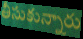
తీసుకున్నారు